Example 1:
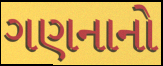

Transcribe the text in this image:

ગણનાનો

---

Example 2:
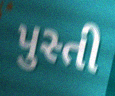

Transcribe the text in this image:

પુસ્તી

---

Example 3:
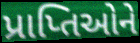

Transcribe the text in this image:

પ્રાપ્તિઓને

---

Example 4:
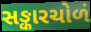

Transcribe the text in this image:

સઙ્કારચોળં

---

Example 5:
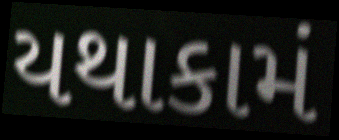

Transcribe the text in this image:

યથાકામં